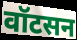
वॉटसन